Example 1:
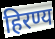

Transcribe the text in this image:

हिरण्य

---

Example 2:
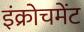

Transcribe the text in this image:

इंक्रोचमेंट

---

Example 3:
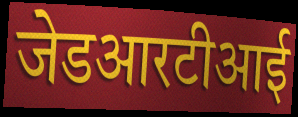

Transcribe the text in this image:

जेडआरटीआई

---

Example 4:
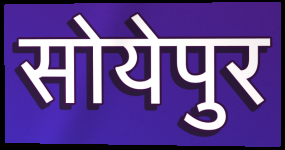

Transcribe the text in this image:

सोयेपुर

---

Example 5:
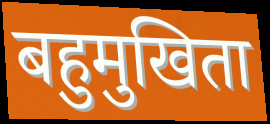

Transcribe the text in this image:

बहुमुखिता